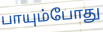
பாயும்போது